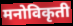
मनोविकृती